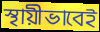
স্থায়ীভাবেই